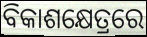
ବିକାଶକ୍ଷେତ୍ରରେ